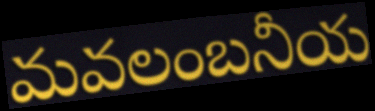
మవలంబనీయ